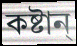
কষ্টান্